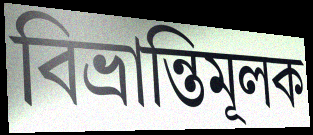
বিভ্রান্তিমূলক